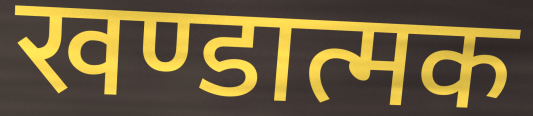
खण्डात्मक